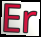
Er